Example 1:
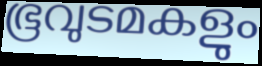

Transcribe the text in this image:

ഭൂവുടമകളും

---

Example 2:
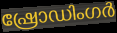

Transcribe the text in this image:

ഷ്രോഡിംഗർ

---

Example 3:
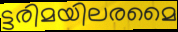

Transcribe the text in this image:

ട്ടരിമയിലരമൈ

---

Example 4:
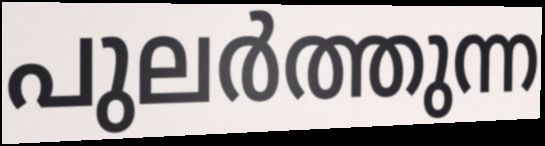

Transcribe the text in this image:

പുലർത്തുന്ന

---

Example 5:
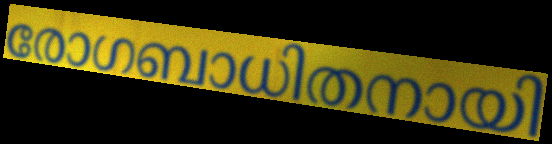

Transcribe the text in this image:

രോഗബാധിതനായി